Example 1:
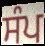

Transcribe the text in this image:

ਸੰਪ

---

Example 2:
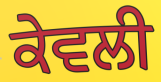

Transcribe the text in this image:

ਕੇਵਲੀ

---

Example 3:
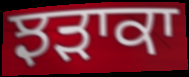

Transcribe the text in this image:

ਝੜਾਕਾ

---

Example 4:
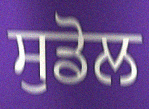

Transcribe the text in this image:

ਸੁਡੋਲ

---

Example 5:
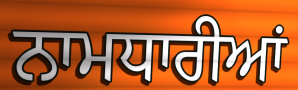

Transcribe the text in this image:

ਨਾਮਧਾਰੀਆਂ